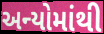
અન્યોમાંથી